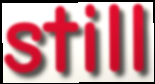
still